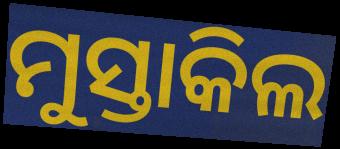
ମୁସ୍ତାକିଲ